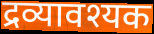
द्रव्यावश्यक